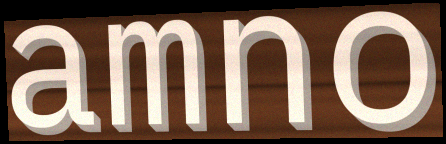
amno